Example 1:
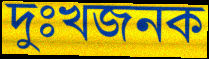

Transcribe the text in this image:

দুঃখজনক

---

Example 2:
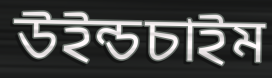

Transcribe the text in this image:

উইন্ডচাইম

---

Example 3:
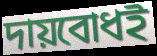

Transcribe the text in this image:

দায়বোধই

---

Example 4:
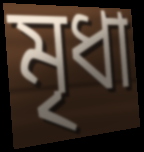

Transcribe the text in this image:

মৃধা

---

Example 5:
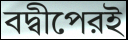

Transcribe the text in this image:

বদ্বীপেরই